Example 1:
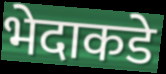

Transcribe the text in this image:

भेदाकडे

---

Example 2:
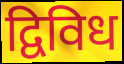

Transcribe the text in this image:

द्विविध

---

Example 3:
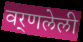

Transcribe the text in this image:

वर्णलेली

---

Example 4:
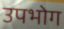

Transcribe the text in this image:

उपभोग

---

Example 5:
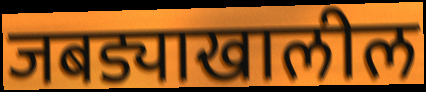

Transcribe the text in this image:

जबड्याखालील